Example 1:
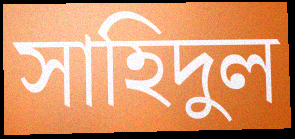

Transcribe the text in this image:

সাহিদুল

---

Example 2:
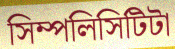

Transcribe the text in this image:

সিম্পলিসিটিটা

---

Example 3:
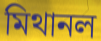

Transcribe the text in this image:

মিথানল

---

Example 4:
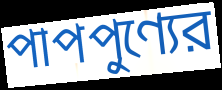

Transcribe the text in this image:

পাপপুণ্যের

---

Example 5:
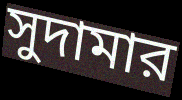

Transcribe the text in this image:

সুদামার